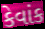
કેવાંક